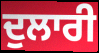
ਦੁਲਾਰੀ